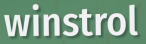
winstrol